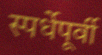
स्पर्धेपूर्वी